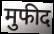
मुफीद